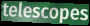
telescopes